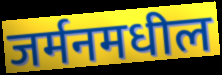
जर्मनमधील